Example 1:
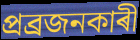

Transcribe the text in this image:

প্ৰব্ৰজনকাৰী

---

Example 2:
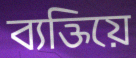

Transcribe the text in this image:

ব্যক্তিয়ে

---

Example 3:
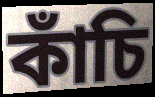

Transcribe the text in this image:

কাঁচি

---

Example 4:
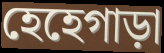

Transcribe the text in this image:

হেহেগাড়া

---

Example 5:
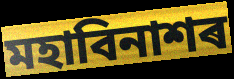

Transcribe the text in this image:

মহাবিনাশৰ